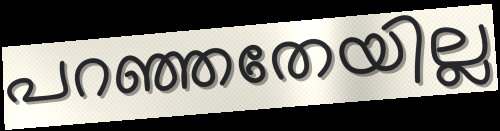
പറഞ്ഞതേയില്ല